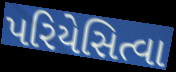
પરિયેસિત્વા